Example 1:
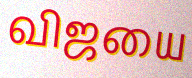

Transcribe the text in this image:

விஜயை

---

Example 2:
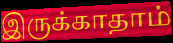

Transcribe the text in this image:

இருக்காதாம்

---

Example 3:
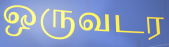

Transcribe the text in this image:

ஒருவடர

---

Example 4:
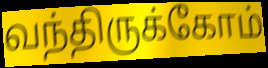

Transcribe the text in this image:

வந்திருக்கோம்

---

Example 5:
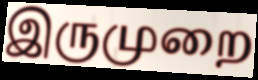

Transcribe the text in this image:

இருமுறை